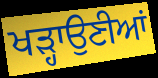
ਖੜ੍ਹਾਉਣੀਆਂ